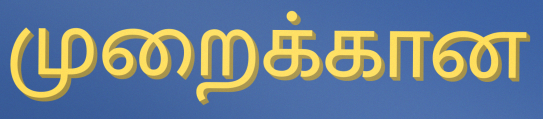
முறைக்கான